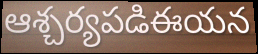
ఆశ్చర్యపడిఈయన